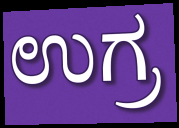
ಉಗ್ರ